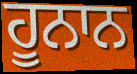
ਹੂਨਾਨ